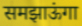
समझाऊंगा